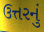
ઉત્તરનું